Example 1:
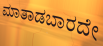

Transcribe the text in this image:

ಮಾತಾಡಬಾರದೇ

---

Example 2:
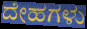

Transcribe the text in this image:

ದೇಹಗಳು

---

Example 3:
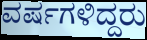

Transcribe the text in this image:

ವರ್ಷಗಳಿದ್ದರು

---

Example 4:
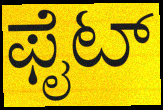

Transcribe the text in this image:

ಫೈಟ್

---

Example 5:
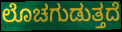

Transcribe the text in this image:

ಲೊಚಗುಡುತ್ತದೆ